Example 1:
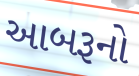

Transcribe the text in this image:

આબરૂનો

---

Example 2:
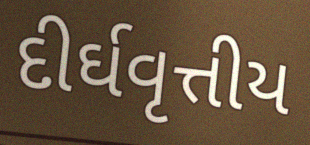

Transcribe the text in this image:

દીર્ઘવૃત્તીય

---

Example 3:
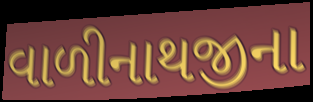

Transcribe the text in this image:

વાળીનાથજીના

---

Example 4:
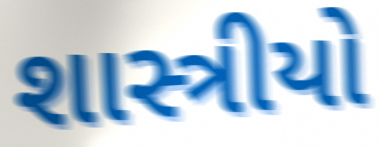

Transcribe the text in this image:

શાસ્ત્રીયો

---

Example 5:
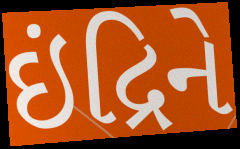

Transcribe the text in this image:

ઇંદ્રિને